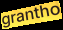
grantho